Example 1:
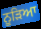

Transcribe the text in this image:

ਨੂੜਿਆ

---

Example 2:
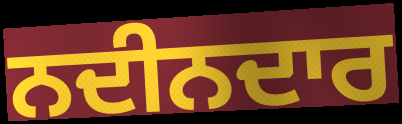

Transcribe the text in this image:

ਨਦੀਨਦਾਰ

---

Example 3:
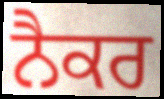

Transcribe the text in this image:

ਨੈਕਰ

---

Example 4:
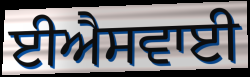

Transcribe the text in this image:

ਈਐਸਵਾਈ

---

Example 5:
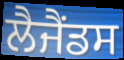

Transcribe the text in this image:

ਲੈਜੈਂਡਸ